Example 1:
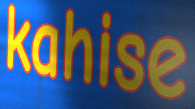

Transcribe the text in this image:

kahise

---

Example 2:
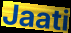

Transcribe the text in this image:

Jaati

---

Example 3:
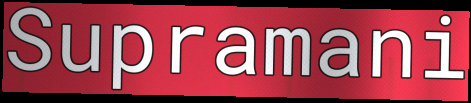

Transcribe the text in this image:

Supramani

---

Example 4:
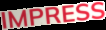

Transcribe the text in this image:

IMPRESS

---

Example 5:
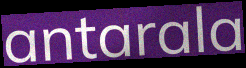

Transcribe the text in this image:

antarala